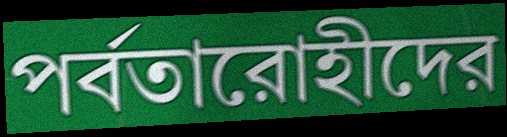
পর্বতারোহীদের